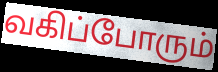
வகிப்போரும்